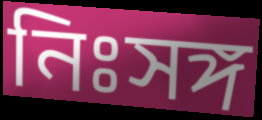
নিঃসঙ্গ